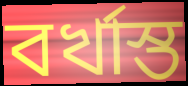
বৰ্খাস্ত